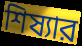
শিষ্যার